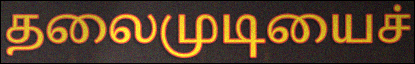
தலைமுடியைச்